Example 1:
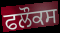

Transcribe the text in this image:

ਫਲੌਕਸ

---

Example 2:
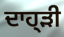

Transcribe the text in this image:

ਦਾਹ੍ੜੀ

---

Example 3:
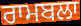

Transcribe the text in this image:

ਰਾਮਬਲਾ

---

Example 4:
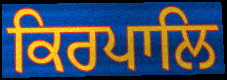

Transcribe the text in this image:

ਕਿਰਪਾਲਿ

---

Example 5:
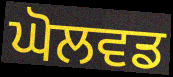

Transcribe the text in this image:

ਘੋਲਵਡ